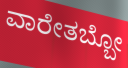
ವಾರೇತಬ್ಬೋ